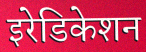
इरेडिकेशन